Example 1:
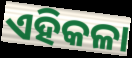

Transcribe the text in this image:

ଏହିକଳା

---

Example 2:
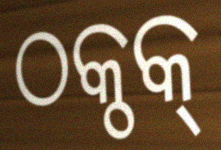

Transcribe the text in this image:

ଠକ୍ଠକ୍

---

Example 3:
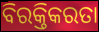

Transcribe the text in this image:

ବିରକ୍ତିକରତା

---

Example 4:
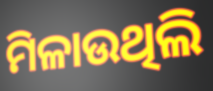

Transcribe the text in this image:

ମିଳାଉଥିଲି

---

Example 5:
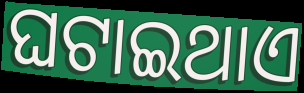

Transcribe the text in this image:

ଘଟାଇଥାଏ